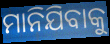
ମାନିଯିବାକୁ